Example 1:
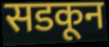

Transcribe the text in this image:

सडकून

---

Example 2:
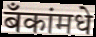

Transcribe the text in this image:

बँकांमधे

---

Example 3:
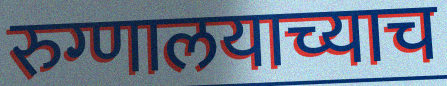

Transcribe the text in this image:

रुग्णालयाच्याच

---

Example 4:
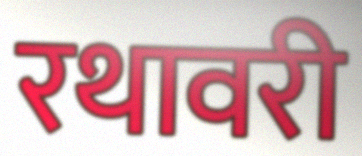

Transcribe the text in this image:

रथावरी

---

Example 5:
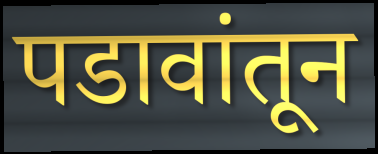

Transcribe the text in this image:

पडावांतून